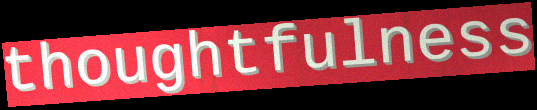
thoughtfulness